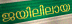
ജയിലിലായ